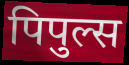
पिपुल्स